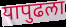
यापुढला